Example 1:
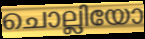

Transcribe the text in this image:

ചൊല്ലിയോ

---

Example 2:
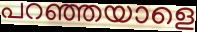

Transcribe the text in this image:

പറഞ്ഞയാളെ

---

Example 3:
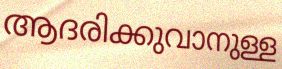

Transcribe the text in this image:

ആദരിക്കുവാനുള്ള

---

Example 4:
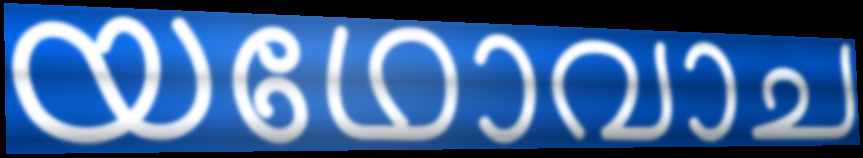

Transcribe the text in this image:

യഥോവാച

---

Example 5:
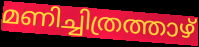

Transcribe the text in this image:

മണിച്ചിത്രത്താഴ്